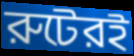
রুটেরই